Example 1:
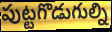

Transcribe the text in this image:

పుట్టగొడుగుల్ని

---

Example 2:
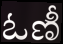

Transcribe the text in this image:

ఓణీ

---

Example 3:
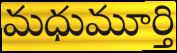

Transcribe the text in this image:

మధుమూర్తి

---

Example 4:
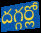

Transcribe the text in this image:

దగ్గర్లో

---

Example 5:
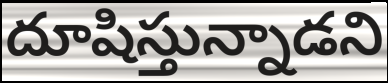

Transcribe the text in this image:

దూషిస్తున్నాడని